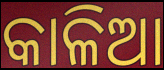
କାଳିଆ